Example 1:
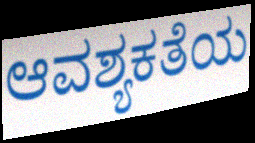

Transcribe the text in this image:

ಆವಶ್ಯಕತೆಯ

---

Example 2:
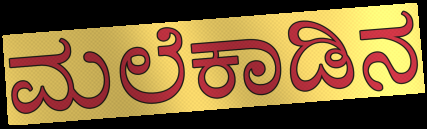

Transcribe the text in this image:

ಮಲೆಕಾಡಿನ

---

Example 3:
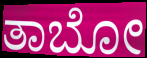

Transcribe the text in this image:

ತಾಬೋ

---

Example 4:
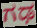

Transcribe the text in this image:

ಗಢ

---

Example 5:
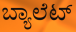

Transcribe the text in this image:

ಬ್ಯಾಲೆಟ್